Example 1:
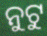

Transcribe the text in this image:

ନୁଟୁ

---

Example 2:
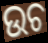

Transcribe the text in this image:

ଉଚ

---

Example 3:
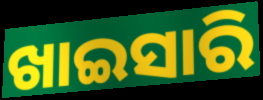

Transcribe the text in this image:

ଖାଇସାରି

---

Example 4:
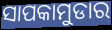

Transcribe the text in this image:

ସାପକାମୁଡାର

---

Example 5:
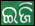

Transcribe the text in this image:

ଇଜି